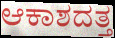
ಆಕಾಶದತ್ತ